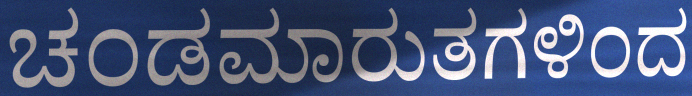
ಚಂಡಮಾರುತಗಳಿಂದ